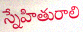
స్నేహితురాలి